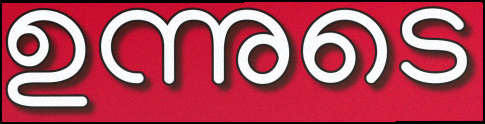
ഉന്നുടെ